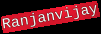
Ranjanvijay